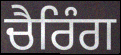
ਚੈਰਿੰਗ